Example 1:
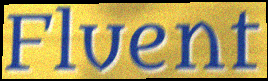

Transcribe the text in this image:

Fluent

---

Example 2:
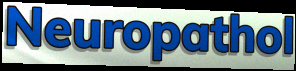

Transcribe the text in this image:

Neuropathol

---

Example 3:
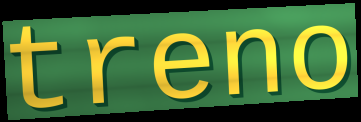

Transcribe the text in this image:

treno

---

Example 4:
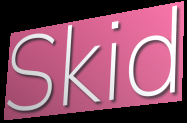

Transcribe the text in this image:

Skid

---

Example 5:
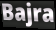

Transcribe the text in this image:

Bajra